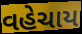
વહેચાય